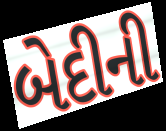
બેદીની